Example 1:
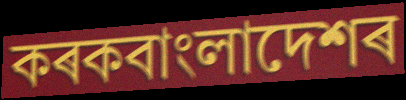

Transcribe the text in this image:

কৰকবাংলাদেশৰ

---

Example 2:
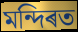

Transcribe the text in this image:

মন্দিৰত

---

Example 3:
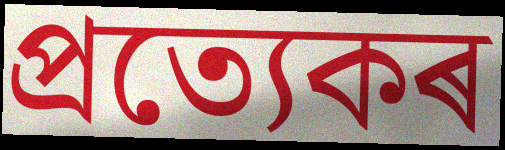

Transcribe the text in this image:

প্ৰত্যেকৰ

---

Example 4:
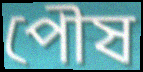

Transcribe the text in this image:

পৌষ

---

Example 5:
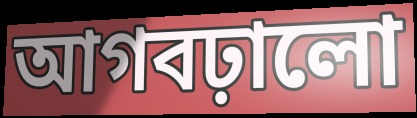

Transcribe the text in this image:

আগবঢ়ালো